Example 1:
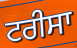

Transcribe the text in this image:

ਟਰੀਸਾ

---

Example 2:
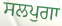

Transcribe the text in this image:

ਸਲਪੁਗਾ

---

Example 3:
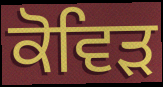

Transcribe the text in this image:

ਕੋਵਿਡ਼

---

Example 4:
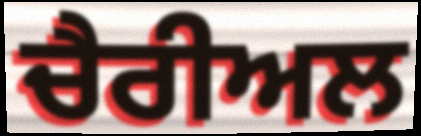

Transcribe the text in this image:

ਚੈਰੀਅਲ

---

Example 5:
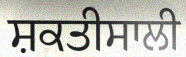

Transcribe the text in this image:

ਸ਼ਕਤੀਸਾਲੀ